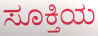
ಸೂಕ್ತಿಯ